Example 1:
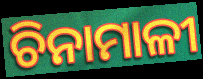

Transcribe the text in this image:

ଚିନାମାଳୀ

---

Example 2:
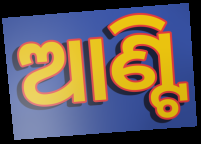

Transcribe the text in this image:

ଆଣ୍ଟି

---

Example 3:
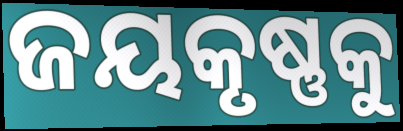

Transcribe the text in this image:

ଜୟକୃଷ୍ଣକୁ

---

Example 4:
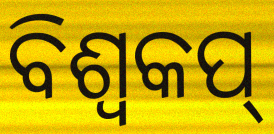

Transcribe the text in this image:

ବିଶ୍ୱକପ୍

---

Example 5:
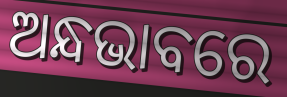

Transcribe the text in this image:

ଅନ୍ଧଭାବରେ